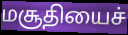
மசூதியைச்